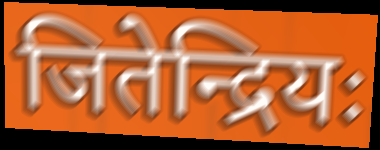
जितेन्द्रियः